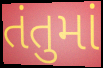
તંતુમાં